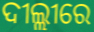
ଦୀଲ୍ଲୀରେ